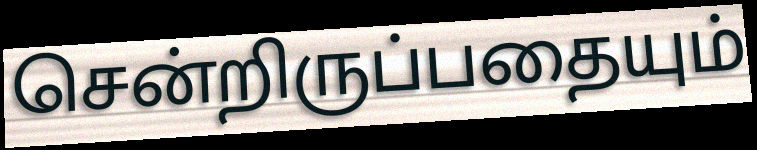
சென்றிருப்பதையும்